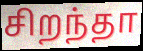
சிறந்தா